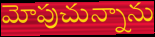
మోపుచున్నాను